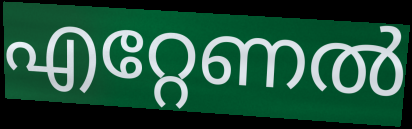
എറ്റേണൽ